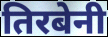
तिरबेनी